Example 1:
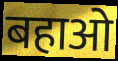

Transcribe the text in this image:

बहाओ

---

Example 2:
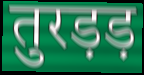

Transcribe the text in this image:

तुरड़ड़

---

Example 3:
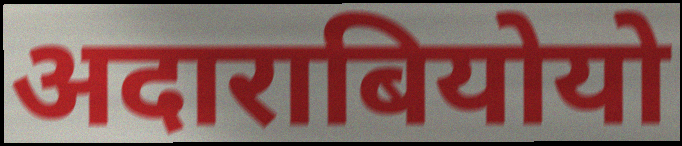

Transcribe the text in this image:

अदाराबियोयो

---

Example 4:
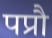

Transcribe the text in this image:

पप्रौ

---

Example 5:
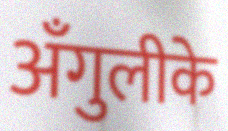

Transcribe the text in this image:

अँगुलीके